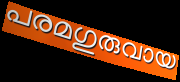
പരമഗുരുവായ